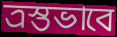
ত্রস্তভাবে